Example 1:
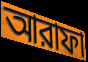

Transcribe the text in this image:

আরাফা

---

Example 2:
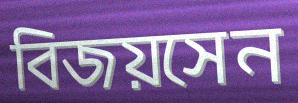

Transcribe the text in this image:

বিজয়সেন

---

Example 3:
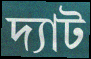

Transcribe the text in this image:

দ্যাট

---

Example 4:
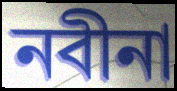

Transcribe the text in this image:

নবীনা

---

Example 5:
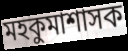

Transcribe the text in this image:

মহকুমাশাসক